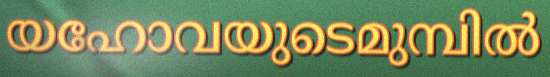
യഹോവയുടെമുമ്പിൽ